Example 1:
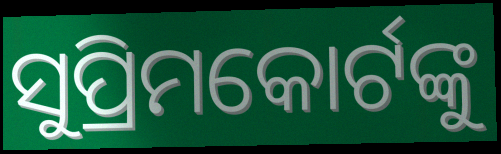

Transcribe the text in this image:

ସୁପ୍ରିମକୋର୍ଟଙ୍କୁ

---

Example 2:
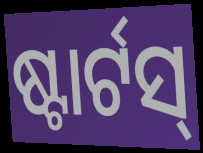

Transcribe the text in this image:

ଷ୍ଟାର୍ଟସ୍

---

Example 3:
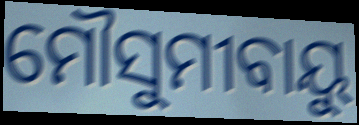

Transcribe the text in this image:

ମୌସୁମୀବାୟୁ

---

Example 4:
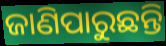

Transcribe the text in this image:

ଜାଣିପାରୁଛନ୍ତି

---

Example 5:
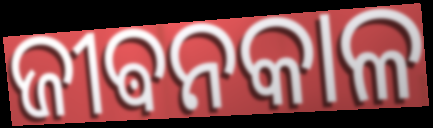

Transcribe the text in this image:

ଜୀଵନକାଳ